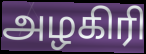
அழகிரி